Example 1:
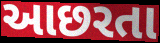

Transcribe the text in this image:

આછરતા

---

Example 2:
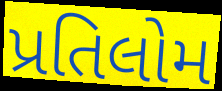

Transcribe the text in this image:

પ્રતિલોમ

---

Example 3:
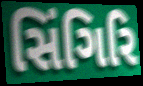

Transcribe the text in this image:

સિંગિરિ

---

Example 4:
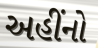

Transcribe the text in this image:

અહીંનો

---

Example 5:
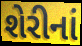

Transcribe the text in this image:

શેરીનાં